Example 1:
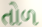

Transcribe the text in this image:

તોળ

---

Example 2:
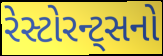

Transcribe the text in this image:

રેસ્ટોરન્ટ્સનો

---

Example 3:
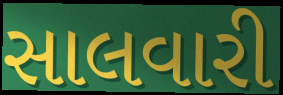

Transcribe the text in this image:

સાલવારી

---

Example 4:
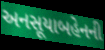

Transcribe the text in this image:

અનસૂયાબહેનની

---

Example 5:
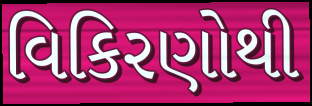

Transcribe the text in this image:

વિકિરણોથી